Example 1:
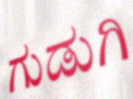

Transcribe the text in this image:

ಗುಡುಗಿ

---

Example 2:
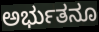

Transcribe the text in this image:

ಅರ್ಭುತನೂ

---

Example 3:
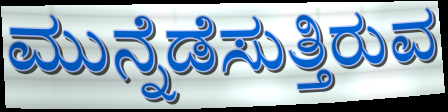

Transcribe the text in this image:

ಮುನ್ನೆಡೆಸುತ್ತಿರುವ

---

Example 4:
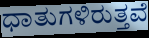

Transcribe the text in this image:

ಧಾತುಗಳಿರುತ್ತವೆ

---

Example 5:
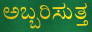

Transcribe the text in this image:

ಅಬ್ಬರಿಸುತ್ತ